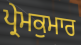
ਪ੍ਰੇਮਕੁਮਾਰ